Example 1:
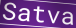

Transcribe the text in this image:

Satva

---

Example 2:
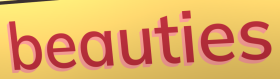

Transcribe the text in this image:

beauties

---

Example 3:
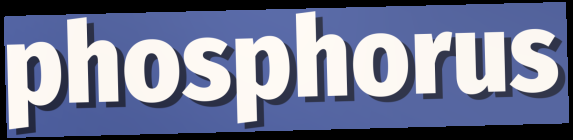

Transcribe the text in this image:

phosphorus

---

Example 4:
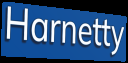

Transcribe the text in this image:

Harnetty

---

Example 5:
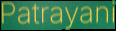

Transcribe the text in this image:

Patrayani